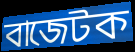
বাজেটক